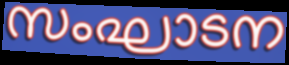
സംഘാടന